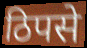
ठिपसे